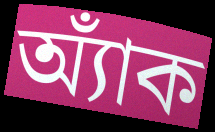
অ্যাঁক